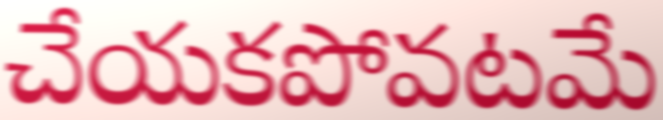
చేయకపోవటమే